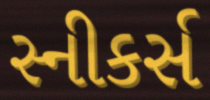
સ્નીકર્સ